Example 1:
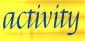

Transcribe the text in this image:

activity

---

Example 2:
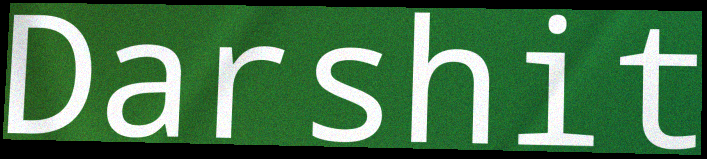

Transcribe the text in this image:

Darshit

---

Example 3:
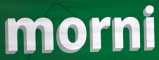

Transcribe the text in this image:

morni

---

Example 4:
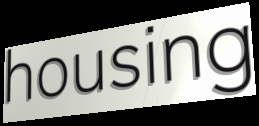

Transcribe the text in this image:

housing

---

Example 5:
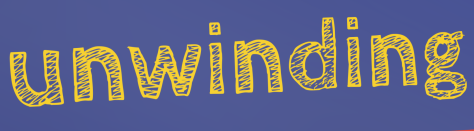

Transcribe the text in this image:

unwinding